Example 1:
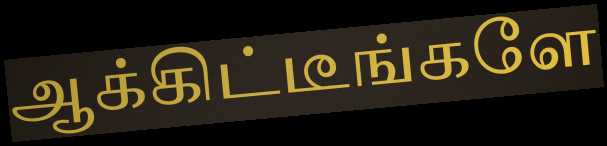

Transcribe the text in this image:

ஆக்கிட்டீங்களே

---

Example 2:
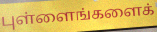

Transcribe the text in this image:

புள்ளைங்களைக்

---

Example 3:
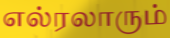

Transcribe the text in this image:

எல்ரலாரும்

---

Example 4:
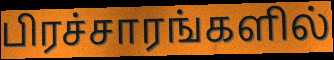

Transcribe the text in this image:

பிரச்சாரங்களில்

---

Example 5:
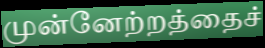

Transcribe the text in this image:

முன்னேற்றத்தைச்